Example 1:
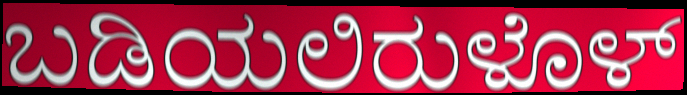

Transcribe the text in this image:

ಬಡಿಯಲಿರುಳೊಳ್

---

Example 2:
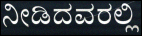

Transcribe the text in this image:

ನೀಡಿದವರಲ್ಲಿ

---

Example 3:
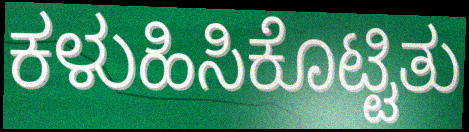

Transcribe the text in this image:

ಕಳುಹಿಸಿಕೊಟ್ಟಿತು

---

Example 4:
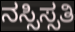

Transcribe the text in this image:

ನಸ್ಸಿಸ್ಸತಿ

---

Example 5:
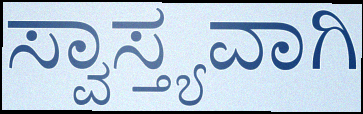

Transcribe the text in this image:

ಸ್ವಾಸ್ತ್ಯವಾಗಿ